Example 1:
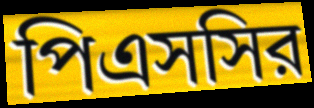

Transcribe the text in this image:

পিএসসির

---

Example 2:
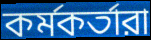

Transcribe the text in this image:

কর্মকর্তারা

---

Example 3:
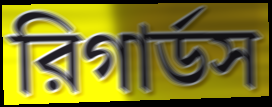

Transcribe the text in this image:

রিগার্ডস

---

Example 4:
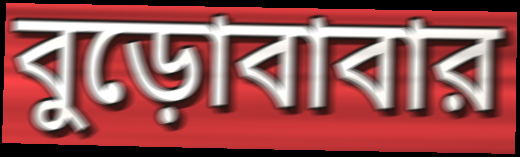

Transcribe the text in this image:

বুড়োবাবার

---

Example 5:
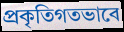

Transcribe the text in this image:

প্রকৃতিগতভাবে